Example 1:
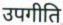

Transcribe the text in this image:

उपगीति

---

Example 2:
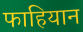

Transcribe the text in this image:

फाहियान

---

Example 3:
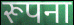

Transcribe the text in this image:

रूपना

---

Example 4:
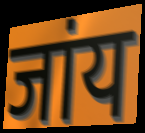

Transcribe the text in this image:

जांय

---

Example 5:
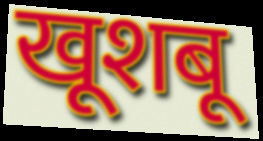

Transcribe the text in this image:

खूशबू